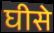
घीसे